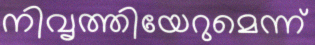
നിവൃത്തിയേറുമെന്ന്